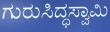
ಗುರುಸಿದ್ಧಸ್ವಾಮಿ